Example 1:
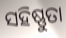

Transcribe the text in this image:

ସହିଷ୍ଣୁତା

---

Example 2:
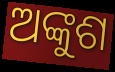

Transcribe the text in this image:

ଅଙ୍କୁଶ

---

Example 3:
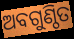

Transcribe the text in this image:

ଅବଗୁଣ୍ଠିତ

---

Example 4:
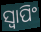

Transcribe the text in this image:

ସ୍ବାପିଂ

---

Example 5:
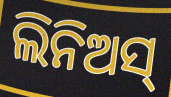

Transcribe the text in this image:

ଲିନିଅସ୍